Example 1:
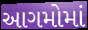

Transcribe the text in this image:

આગમોમાં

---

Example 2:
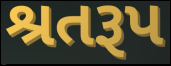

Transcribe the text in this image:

શ્રતરૂપ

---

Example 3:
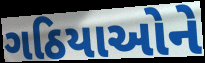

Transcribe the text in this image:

ગઠિયાઓને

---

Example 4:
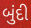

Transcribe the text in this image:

બુંદી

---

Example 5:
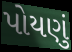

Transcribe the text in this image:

પોયણું